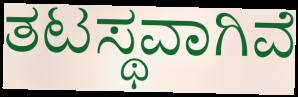
ತಟಸ್ಥವಾಗಿವೆ